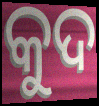
କୁଦ